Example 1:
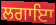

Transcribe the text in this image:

ਲਗਾਇਾ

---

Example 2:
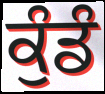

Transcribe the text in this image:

ਕੁੰਡੰ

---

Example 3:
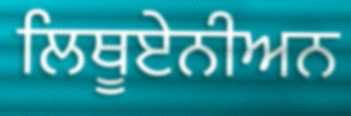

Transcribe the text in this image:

ਲਿਥੂਏਨੀਅਨ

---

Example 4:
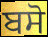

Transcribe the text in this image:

ਬਸੋ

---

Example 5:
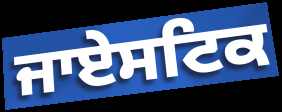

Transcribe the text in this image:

ਜਾਏਸਟਿਕ